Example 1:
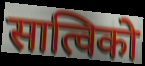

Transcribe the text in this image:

सात्विको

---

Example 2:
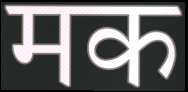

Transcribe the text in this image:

मक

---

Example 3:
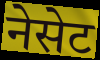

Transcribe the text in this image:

नेसेट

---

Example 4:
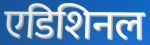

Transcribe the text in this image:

एडिशिनल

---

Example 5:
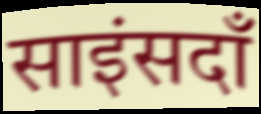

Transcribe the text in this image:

साइंसदाँ